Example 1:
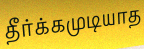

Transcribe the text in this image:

தீர்க்கமுடியாத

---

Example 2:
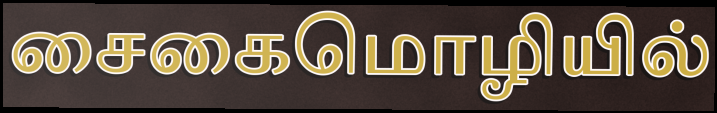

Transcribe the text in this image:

சைகைமொழியில்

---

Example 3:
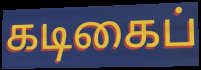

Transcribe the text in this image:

கடிகைப்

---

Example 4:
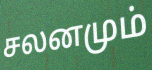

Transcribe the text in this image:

சலனமும்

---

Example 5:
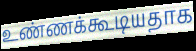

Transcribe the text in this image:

உண்ணக்கூடியதாக